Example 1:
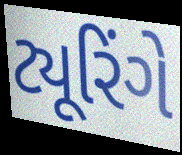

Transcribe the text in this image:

ટ્યૂરિંગે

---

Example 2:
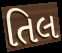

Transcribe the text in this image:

તિલ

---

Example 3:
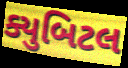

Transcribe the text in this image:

ક્યુબિટલ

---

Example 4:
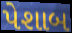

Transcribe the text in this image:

પેશાબ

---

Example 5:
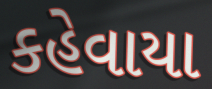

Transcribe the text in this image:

કહેવાયા